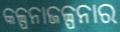
କଳ୍ପନାଜଳ୍ପନାର